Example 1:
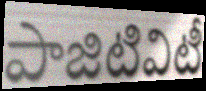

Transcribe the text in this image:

పాజిటివిటీ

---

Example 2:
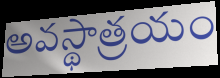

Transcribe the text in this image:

అవస్థాత్రయం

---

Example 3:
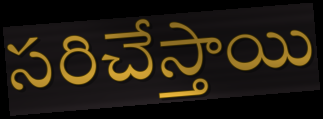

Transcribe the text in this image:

సరిచేస్తాయి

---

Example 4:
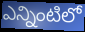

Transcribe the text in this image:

ఎన్నింటిలో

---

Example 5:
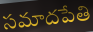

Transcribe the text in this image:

సమాదపేతి